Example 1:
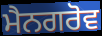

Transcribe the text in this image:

ਮੈਨਗਰੋਵ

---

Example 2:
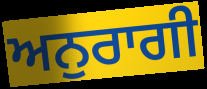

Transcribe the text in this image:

ਅਨੁਰਾਗੀ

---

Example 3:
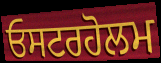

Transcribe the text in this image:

ਓਸਟਰਹੋਲਮ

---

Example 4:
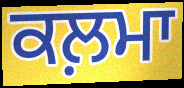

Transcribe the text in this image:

ਕਲ਼ਮਾ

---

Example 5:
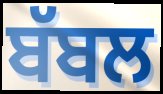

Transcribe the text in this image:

ਬੱਬਲ